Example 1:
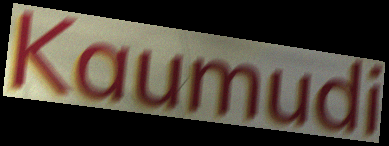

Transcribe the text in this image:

Kaumudi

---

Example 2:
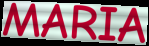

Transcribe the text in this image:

MARIA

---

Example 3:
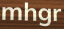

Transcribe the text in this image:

mhgr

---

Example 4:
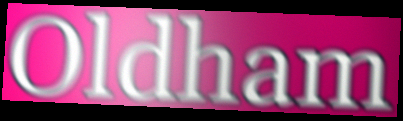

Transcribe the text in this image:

Oldham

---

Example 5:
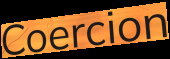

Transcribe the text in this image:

Coercion